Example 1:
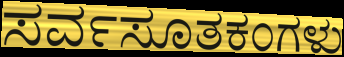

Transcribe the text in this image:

ಸರ್ವಸೂತಕಂಗಳು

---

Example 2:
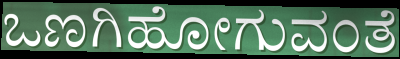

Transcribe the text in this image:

ಒಣಗಿಹೋಗುವಂತೆ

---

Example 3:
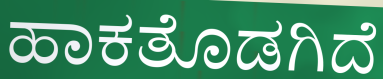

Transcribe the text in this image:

ಹಾಕತೊಡಗಿದೆ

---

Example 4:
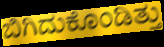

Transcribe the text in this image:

ಬಿಗಿದುಕೊಂಡಿತ್ತು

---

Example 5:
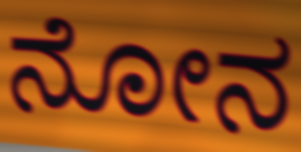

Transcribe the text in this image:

ನೋನ